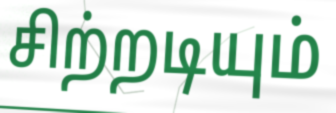
சிற்றடியும்